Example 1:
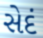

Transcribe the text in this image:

સેદં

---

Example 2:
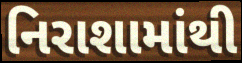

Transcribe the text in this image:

નિરાશામાંથી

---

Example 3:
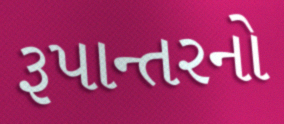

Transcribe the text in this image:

રૂપાન્તરનો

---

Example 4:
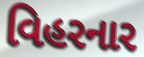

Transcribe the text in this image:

વિહરનાર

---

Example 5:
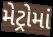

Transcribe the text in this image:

મેટ્રોમાં